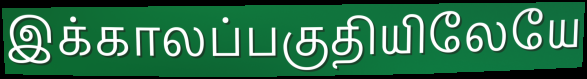
இக்காலப்பகுதியிலேயே